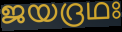
ജയദ്രഥഃ